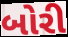
બોરી